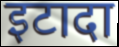
इटादा